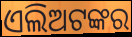
ଏଲିଅଟଙ୍କର